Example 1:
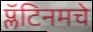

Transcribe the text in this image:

प्लॅटिनमचे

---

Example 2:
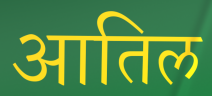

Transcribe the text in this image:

आतिल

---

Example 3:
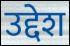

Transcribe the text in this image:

उद्देश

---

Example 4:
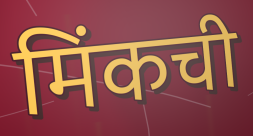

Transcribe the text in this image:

मिंकची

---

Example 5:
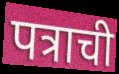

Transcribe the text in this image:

पत्राची